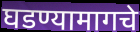
घडण्यामागचे